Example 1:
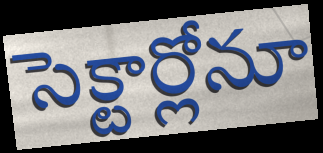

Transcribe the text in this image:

సెక్టార్లోనూ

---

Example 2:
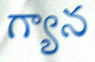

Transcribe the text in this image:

గ్యాన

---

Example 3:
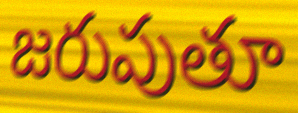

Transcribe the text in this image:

జరుపుతూ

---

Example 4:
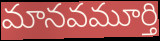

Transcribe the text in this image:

మానవమూర్తి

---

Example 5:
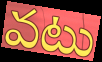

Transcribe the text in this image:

వటు